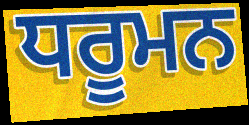
ਧਰੂਮਨ